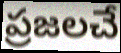
ప్రజలచే